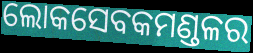
ଲୋକସେବକମଣ୍ଡଳର